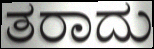
ತರಾದು